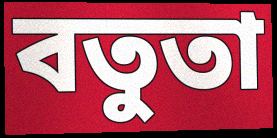
বতুতা